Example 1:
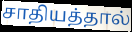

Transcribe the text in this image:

சாதியத்தால்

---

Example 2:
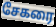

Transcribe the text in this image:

சேகரை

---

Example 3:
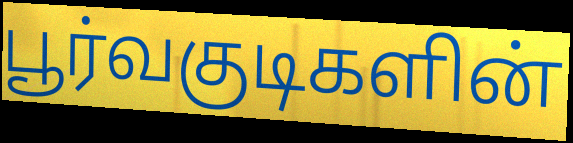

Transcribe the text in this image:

பூர்வகுடிகளின்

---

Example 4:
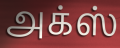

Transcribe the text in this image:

அக்ஸ்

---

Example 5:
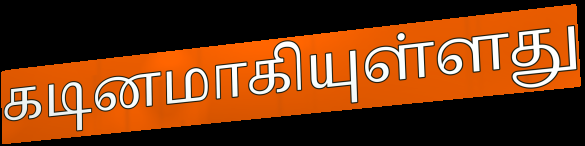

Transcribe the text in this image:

கடினமாகியுள்ளது